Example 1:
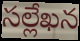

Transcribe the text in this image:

సల్లేఖన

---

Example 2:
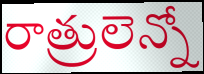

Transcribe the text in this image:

రాత్రులెన్నో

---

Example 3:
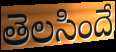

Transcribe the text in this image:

తెలసిందే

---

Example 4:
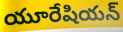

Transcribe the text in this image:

యూరేషియన్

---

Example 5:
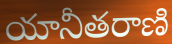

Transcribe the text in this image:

యానీతరాణి